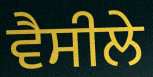
ਵੈਸੀਲੇ